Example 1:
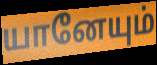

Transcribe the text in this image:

யானேயும்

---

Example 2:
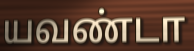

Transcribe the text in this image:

யவண்டா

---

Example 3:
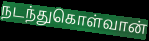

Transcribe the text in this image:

நடந்துகொள்வான்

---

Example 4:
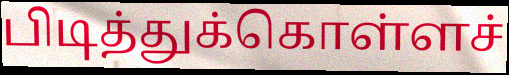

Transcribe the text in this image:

பிடித்துக்கொள்ளச்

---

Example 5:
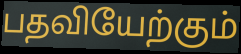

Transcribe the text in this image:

பதவியேற்கும்